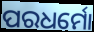
ପରଧର୍ମୋ